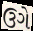
ઉગે